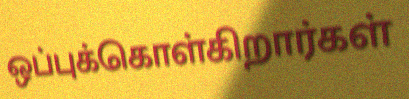
ஒப்புக்கொள்கிறார்கள்